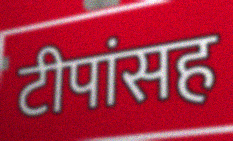
टीपांसह